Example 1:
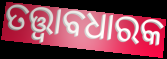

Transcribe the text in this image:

ତତ୍ତ୍ୱାବଧାରକ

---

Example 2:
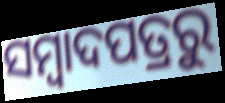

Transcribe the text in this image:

ସମ୍ବାଦପତ୍ରରୁ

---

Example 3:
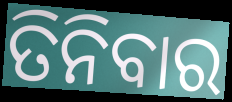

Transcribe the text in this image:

ତିନିବାର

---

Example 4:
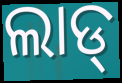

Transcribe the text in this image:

ଲାଡ୍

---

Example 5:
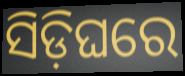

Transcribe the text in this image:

ସିଡ଼ିଘରେ